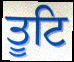
ਤੂਟਿ